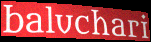
baluchari